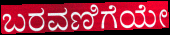
ಬರವಣಿಗೆಯೇ